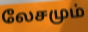
லேசமும்